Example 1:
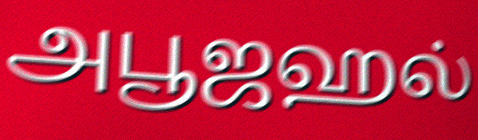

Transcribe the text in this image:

அபூஜஹல்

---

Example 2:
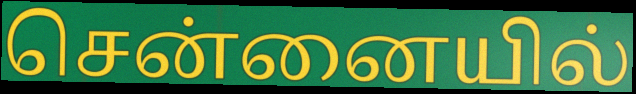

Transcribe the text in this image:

சென்னையில்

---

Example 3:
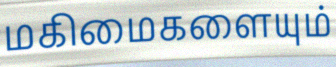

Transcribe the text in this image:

மகிமைகளையும்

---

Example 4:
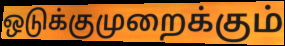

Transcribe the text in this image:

ஒடுக்குமுறைக்கும்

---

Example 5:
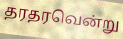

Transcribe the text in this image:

தரதரவென்று